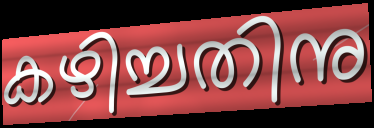
കഴിച്ചതിനു